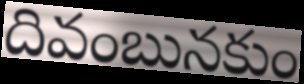
దివంబునకుం